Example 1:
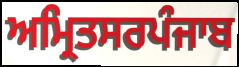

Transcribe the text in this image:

ਅਮ੍ਰਿਤਸਰਪੰਜਾਬ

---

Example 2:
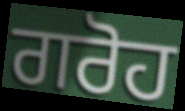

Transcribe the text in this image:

ਗਰੋਹ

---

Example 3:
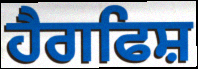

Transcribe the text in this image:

ਹੈਗਫਿਸ਼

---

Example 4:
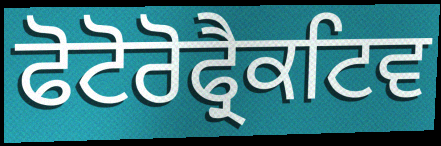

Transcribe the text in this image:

ਫੋਟੋਰੋਫ੍ਰੈਕਟਿਵ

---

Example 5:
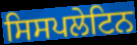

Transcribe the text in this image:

ਸਿਸਪਲੇਟਿਨ